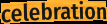
celebration